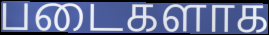
படைகளாக